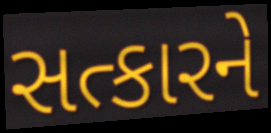
સત્કારને